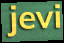
jevi